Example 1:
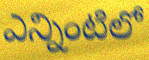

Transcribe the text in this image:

ఎన్నింటిలో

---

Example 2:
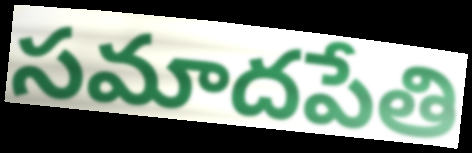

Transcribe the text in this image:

సమాదపేతి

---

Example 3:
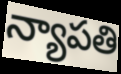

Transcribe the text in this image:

న్యాపతి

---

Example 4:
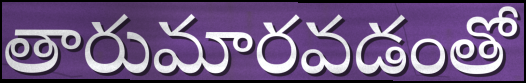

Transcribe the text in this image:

తారుమారవడంతో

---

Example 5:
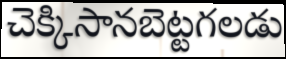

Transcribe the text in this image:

చెక్కిసానబెట్టగలడు